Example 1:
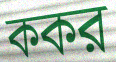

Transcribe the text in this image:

ককর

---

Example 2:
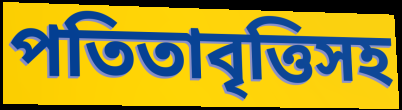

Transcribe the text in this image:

পতিতাবৃত্তিসহ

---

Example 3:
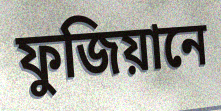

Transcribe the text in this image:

ফুজিয়ানে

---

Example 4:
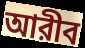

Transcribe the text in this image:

আরীব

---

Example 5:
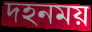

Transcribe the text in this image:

দহনময়